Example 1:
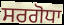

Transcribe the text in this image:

ਸਰਗੋਧਾ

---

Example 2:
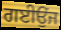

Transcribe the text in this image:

ਗਈਉਂਜ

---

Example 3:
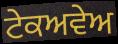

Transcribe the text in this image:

ਟੇਕਅਵੇਅ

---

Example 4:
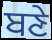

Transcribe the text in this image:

ਬਣੇ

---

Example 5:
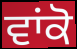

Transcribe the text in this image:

ਵਾਂਕੋ